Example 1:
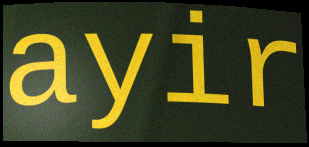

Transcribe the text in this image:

ayir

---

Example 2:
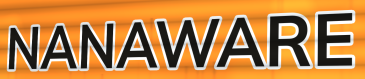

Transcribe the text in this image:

NANAWARE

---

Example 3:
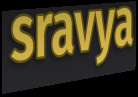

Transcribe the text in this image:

sravya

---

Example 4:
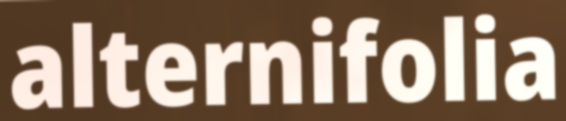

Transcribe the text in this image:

alternifolia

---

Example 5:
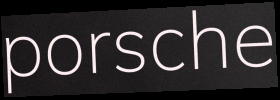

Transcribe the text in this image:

porsche